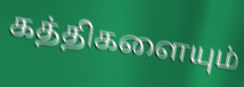
கத்திகளையும்